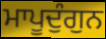
ਮਾਪੂਦੁੰਗੁਨ